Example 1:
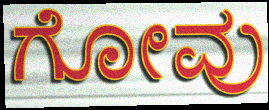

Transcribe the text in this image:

ಗೋವು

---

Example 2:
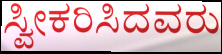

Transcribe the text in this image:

ಸ್ವೀಕರಿಸಿದವರು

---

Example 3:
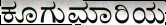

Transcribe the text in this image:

ಕೂಗುಮಾರಿಯ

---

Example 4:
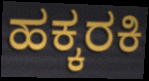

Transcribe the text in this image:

ಹಕ್ಕರಕಿ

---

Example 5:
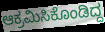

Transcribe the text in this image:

ಆಕ್ರಮಿಸಿಕೊಂಡಿದ್ದ